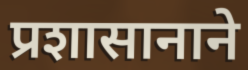
प्रशासानाने